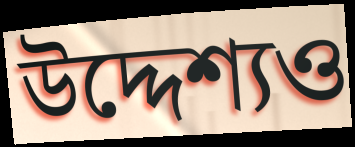
উদ্দেশ্যও